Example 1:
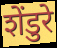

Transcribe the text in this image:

शेंडुरे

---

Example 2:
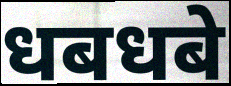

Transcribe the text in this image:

धबधबे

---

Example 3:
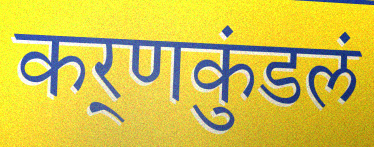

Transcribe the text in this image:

कर्णकुंडलं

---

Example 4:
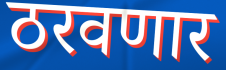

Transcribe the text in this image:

ठरवणार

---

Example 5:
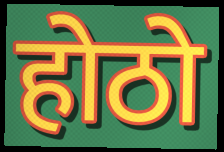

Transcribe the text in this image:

होठो